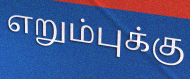
எறும்புக்கு